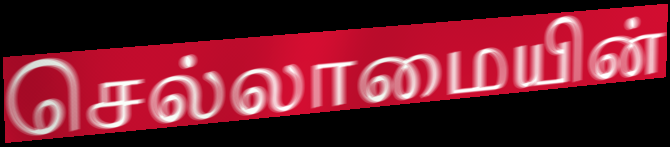
செல்லாமையின்